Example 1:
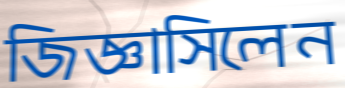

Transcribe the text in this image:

জিজ্ঞাসিলেন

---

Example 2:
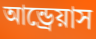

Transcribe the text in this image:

আন্ড্রেয়াস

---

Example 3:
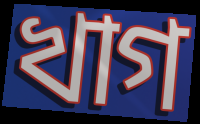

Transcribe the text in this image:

খাগ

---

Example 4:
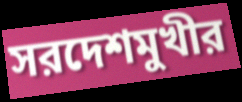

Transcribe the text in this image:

সরদেশমুখীর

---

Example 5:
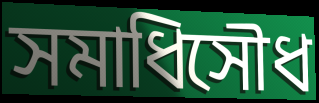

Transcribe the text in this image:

সমাধিসৌধ